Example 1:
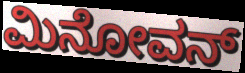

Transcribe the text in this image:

ಮಿನೋವನ್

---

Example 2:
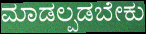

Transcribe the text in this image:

ಮಾಡಲ್ಪಡಬೇಕು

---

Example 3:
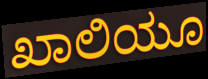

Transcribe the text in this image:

ಖಾಲಿಯೂ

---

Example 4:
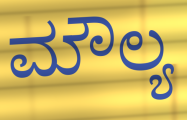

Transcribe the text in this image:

ಮೌಲ್ಯ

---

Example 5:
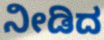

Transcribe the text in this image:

ನೀಡಿದ